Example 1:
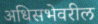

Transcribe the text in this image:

अधिसभेवरील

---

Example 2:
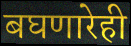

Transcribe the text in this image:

बघणारेही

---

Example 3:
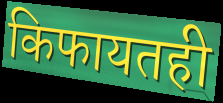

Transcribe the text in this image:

किफायतही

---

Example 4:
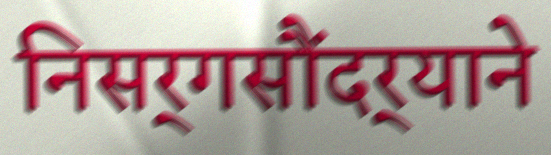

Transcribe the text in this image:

निसर्गसौंदर्याने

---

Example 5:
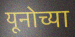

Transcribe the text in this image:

यूनोच्या